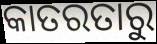
କାତରତାରୁ